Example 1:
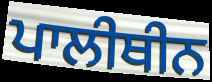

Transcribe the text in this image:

ਪਾਲੀਥੀਨ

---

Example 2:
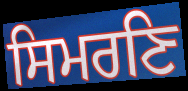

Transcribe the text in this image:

ਸਿਮਰਣਿ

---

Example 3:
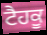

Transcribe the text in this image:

ਟੈਹਕੂ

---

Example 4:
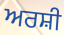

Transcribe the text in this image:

ਅਰਸ਼ੀ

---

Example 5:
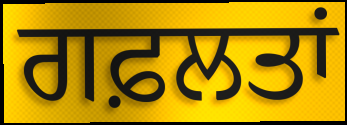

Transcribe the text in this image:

ਗਫ਼ਲਤਾਂ